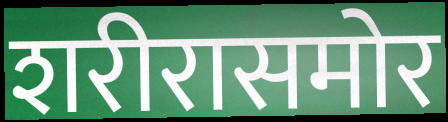
शरीरासमोर